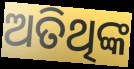
ଅତିଥିଙ୍କ